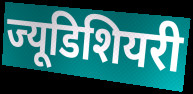
ज्यूडिशियरी